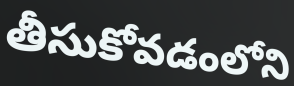
తీసుకోవడంలోని